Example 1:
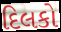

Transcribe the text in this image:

દિલકો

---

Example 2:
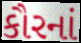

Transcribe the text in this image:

કૌરનાં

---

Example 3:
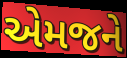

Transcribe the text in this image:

એમજને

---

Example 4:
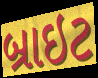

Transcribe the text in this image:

બ્રાઇટ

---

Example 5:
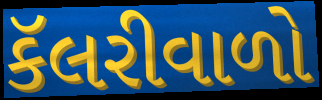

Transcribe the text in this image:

કૅલરીવાળો